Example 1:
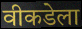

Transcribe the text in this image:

वीकडेला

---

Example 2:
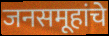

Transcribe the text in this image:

जनसमूहांचे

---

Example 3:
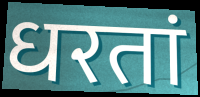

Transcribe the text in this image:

धरतां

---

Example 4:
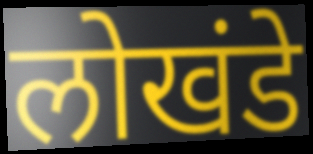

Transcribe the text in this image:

लोखंडे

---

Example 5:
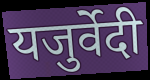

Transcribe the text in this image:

यजुर्वेदी